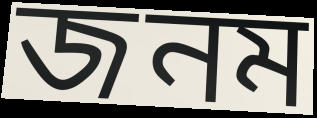
জনম